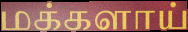
மக்களாய்